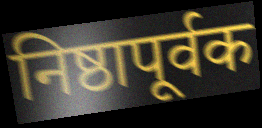
निष्ठापूर्वक